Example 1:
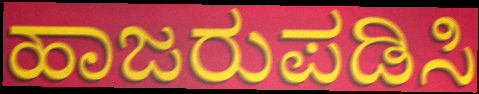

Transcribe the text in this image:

ಹಾಜರುಪಡಿಸಿ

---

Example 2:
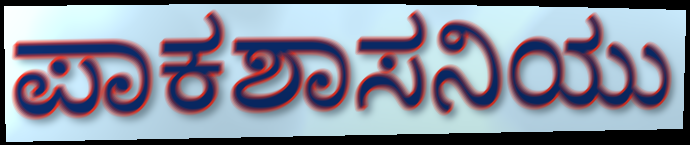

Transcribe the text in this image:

ಪಾಕಶಾಸನಿಯು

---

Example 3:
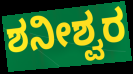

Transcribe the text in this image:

ಶನೀಶ್ವರ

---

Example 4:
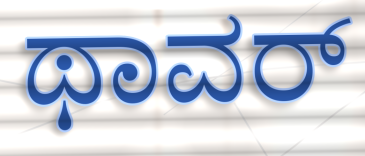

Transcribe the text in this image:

ಥಾವರ್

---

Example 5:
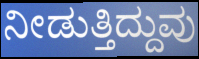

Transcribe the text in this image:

ನೀಡುತ್ತಿದ್ದುವು